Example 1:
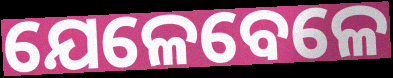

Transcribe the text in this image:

ଯେଳେବେଳେ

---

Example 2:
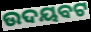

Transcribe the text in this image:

ଉଦୟବଟ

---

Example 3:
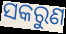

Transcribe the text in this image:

ସକରୁଣ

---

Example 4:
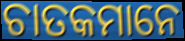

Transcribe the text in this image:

ଚାତକମାନେ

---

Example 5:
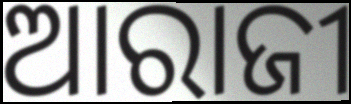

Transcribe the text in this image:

ଆରାଜୀ